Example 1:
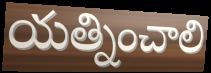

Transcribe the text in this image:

యత్నించాలి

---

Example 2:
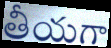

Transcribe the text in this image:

తీయగా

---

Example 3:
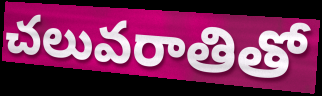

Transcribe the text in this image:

చలువరాతితో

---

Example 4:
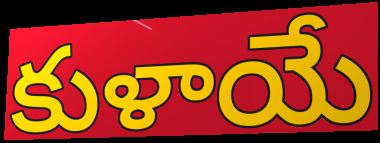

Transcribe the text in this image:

కుళాయే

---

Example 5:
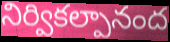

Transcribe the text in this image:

నిర్వికల్పానంద